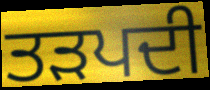
ਤੜਪਦੀ